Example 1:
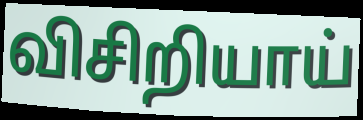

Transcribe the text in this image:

விசிறியாய்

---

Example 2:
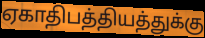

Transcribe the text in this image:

ஏகாதிபத்தியத்துக்கு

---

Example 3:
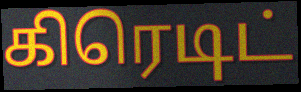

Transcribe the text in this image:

கிரெடிட்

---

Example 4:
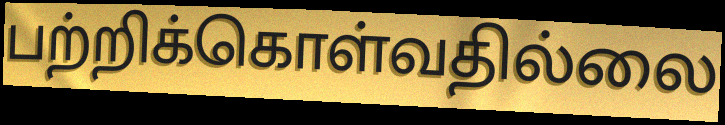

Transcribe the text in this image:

பற்றிக்கொள்வதில்லை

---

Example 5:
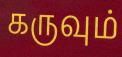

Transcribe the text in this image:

கருவும்